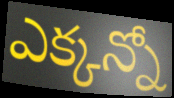
ఎక్కన్నో